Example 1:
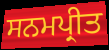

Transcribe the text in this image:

ਸਨਮਪ੍ਰੀਤ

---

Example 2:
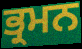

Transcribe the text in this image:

ਭ੍ਰਮਨ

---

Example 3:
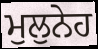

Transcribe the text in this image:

ਮੁਲੁਨੇਹ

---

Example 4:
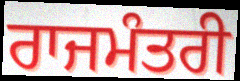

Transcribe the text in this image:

ਰਾਜਮੰਤਰੀ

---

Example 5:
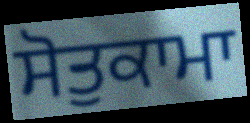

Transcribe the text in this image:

ਸੋਤੁਕਾਮਾ